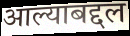
आल्याबद्दल